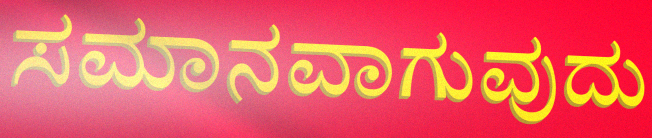
ಸಮಾನವಾಗುವುದು